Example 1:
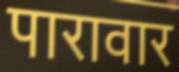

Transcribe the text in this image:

पारावार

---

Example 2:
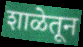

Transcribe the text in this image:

शाळेतून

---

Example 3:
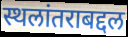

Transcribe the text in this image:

स्थलांतराबद्दल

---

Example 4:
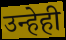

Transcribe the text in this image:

उन्हेही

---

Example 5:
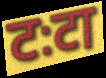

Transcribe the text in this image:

टःटा